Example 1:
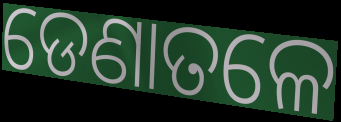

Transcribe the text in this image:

ଡେଣାତଳେ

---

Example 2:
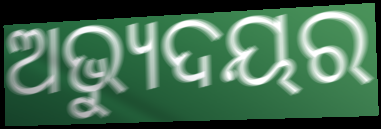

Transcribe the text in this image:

ଅଭ୍ୟୁଦୟର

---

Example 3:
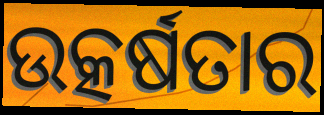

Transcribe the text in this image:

ଉତ୍କର୍ଷତାର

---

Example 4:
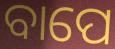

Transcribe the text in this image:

ବାପେ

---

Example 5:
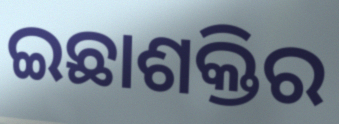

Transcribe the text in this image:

ଇଛାଶକ୍ତିର